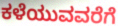
ಕಳೆಯುವವರೆಗೆ